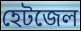
হেটজেল